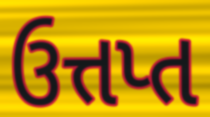
ઉત્તપ્ત